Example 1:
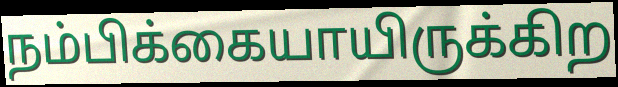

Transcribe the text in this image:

நம்பிக்கையாயிருக்கிற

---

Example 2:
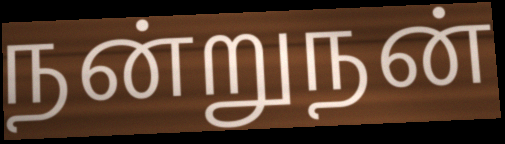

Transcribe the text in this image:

நன்றுநன்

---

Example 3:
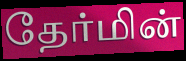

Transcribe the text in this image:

தேர்மின்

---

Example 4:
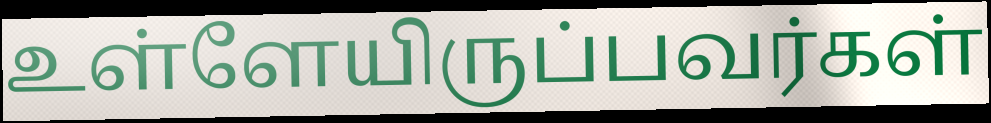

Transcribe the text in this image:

உள்ளேயிருப்பவர்கள்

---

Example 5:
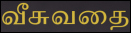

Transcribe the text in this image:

வீசுவதை